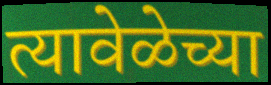
त्यावेळेच्या